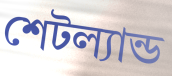
শেটল্যান্ড